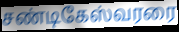
சண்டிகேஸ்வரரை